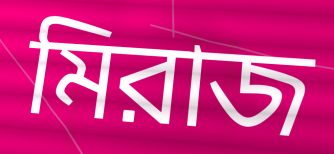
মিরাজ